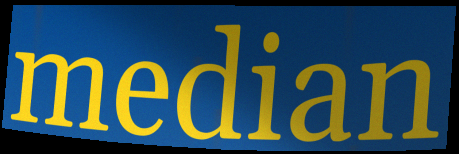
median